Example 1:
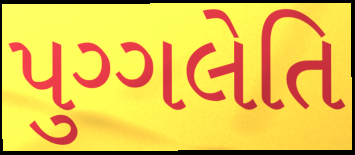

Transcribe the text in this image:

પુગ્ગલેતિ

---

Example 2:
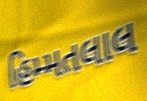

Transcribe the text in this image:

હિમ્મતલાલ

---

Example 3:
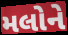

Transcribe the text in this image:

મલોને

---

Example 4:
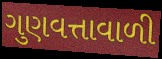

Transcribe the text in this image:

ગુણવત્તાવાળી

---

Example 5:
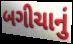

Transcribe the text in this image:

બગીચાનું